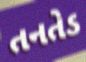
તનતેડ